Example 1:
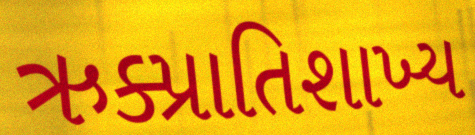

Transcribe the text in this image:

ઋક્પ્રાતિશાખ્ય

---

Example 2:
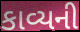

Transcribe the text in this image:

કાવ્યની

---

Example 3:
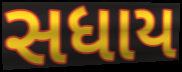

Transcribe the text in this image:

સધાય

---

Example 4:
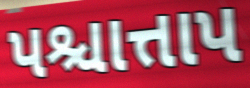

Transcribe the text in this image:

પશ્ચાત્તાપ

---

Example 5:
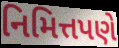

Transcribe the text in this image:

નિમિત્તપણે